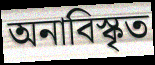
অনাবিস্কৃত